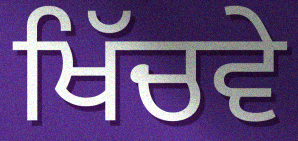
ਖਿੱਚਵੇ